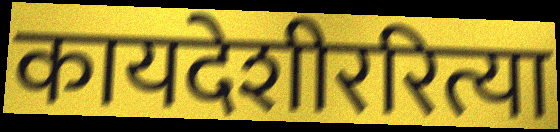
कायदेशीररित्या